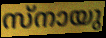
സ്നായു